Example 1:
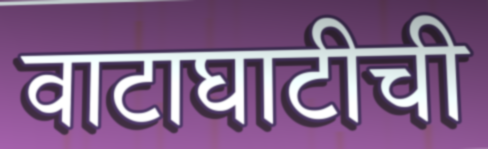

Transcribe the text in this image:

वाटाघाटीची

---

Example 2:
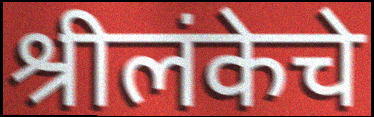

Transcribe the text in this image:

श्रीलंकेचे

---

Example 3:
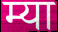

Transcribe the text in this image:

म्या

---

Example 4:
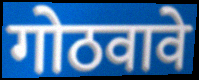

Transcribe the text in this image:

गोठवावे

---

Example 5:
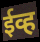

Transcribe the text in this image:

ईव्ह